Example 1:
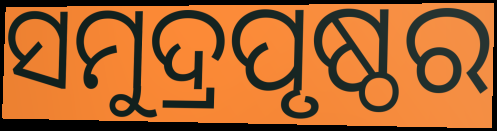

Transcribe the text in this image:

ସମୁଦ୍ରପୃଷ୍ଠର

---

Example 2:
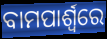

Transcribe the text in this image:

ବାମପାର୍ଶ୍ଵରେ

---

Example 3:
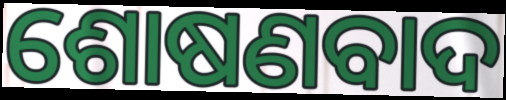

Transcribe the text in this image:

ଶୋଷଣବାଦ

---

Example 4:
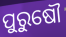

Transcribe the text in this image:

ପୁରୁଷୌ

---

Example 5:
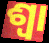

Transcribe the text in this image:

ଶ୍ୱା